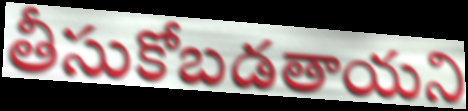
తీసుకోబడతాయని